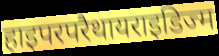
हाइपरपरैथायराइडिज्म